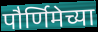
पौर्णिमेच्या